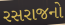
રસરાજનો